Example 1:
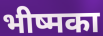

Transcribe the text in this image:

भीष्मका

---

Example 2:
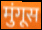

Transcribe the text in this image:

मुंगूस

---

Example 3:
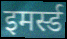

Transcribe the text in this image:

इमर्स्ड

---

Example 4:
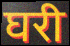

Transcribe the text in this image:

घरी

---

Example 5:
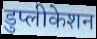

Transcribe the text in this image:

डुप्लीकेशन